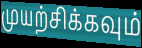
முயற்சிக்கவும்